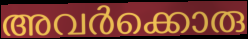
അവർക്കൊരു